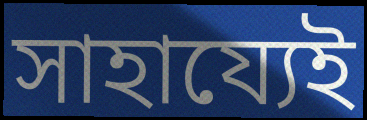
সাহায্যেই